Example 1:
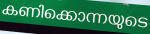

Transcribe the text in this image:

കണിക്കൊന്നയുടെ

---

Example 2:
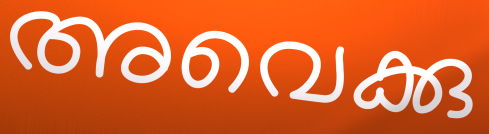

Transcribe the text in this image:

അവെക്കു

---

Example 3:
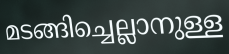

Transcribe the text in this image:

മടങ്ങിച്ചെല്ലാനുള്ള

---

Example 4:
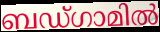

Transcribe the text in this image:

ബഡ്ഗാമിൽ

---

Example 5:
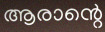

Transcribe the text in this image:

ആരാന്റെ